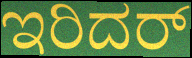
ಇರಿದರ್